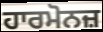
ਹਾਰਮੋਨਜ਼